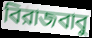
বিরাজবাবু